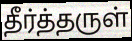
தீர்த்தருள்